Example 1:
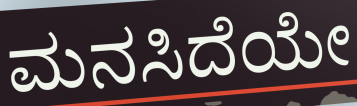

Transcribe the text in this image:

ಮನಸಿದೆಯೇ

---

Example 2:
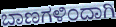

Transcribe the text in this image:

ಬಾಣಗಳಿಂದಾಗಿ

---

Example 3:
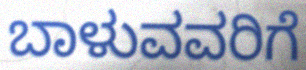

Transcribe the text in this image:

ಬಾಳುವವರಿಗೆ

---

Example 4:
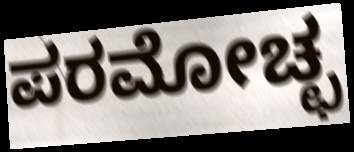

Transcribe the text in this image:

ಪರಮೋಚ್ಛ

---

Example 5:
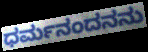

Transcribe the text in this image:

ಧರ್ಮನಂದನನು